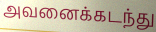
அவனைக்கடந்து